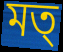
মত্